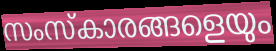
സംസ്‌കാരങ്ങളെയും